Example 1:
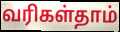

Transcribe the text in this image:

வரிகள்தாம்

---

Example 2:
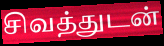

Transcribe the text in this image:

சிவத்துடன்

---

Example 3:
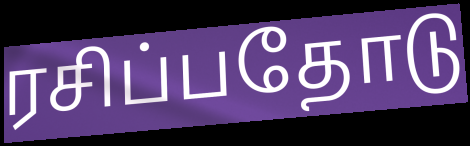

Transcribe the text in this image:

ரசிப்பதோடு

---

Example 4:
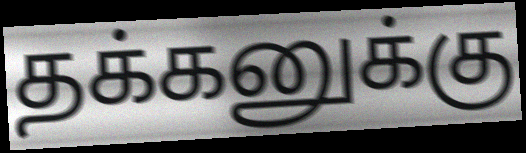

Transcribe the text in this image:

தக்கனுக்கு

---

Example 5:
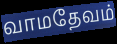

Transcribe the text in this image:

வாமதேவம்